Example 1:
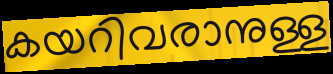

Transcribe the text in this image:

കയറിവരാനുള്ള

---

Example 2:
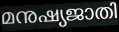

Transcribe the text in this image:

മനുഷ്യജാതി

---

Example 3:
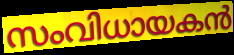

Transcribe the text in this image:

സംവിധായകൻ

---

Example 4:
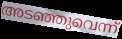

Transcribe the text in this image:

അടഞ്ഞുവെന്ന്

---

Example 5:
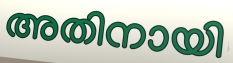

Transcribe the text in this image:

അതിനായി